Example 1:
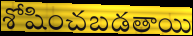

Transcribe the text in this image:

శోషించబడతాయి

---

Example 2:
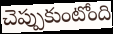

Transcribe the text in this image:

చెప్పుకుంటోంది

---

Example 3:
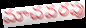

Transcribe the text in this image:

మాచవరపు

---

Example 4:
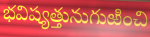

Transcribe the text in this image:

భవిష్యత్తునుగుఱించి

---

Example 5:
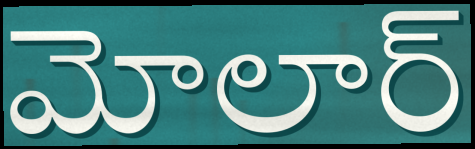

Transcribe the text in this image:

మోలార్